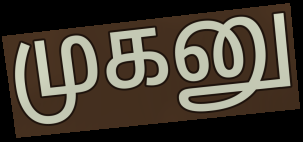
முகனு